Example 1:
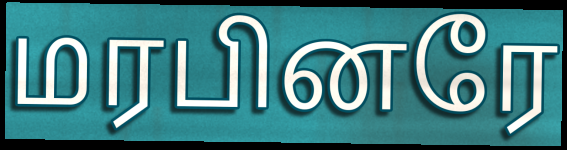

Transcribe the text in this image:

மரபினரே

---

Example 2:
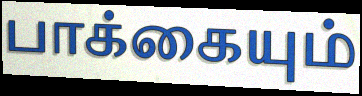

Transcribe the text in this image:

பாக்கையும்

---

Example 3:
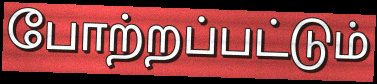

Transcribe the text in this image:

போற்றப்பட்டும்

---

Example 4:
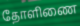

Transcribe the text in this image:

தோளிணை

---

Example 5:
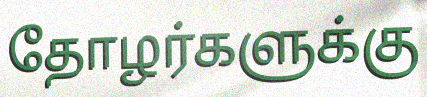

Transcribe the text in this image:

தோழர்களுக்கு